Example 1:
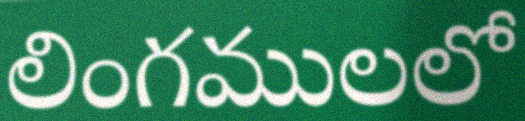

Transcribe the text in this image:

లింగములలో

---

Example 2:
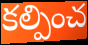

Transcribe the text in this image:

కల్పించ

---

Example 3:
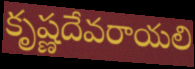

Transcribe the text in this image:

కృష్ణదేవరాయలి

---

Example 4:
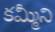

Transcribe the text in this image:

కమ్మీని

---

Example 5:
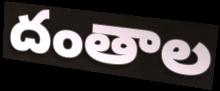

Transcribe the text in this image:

దంతాల